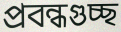
প্রবন্ধগুচ্ছ